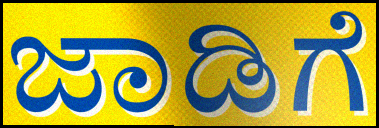
ಜಾಡಿಗೆ